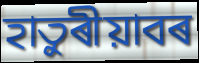
হাতুৰীয়াবৰ